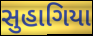
સુહાગિયા